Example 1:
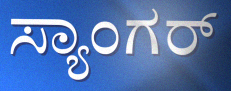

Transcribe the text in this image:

ಸ್ಯಾಂಗರ್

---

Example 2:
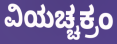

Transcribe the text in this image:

ವಿಯಚ್ಚಕ್ರಂ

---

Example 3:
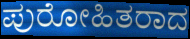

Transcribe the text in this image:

ಪುರೋಹಿತರಾದ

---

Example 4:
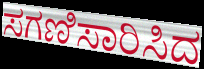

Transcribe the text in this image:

ಸಗಣಿಸಾರಿಸಿದ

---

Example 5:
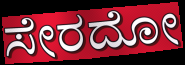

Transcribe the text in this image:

ಸೇರದೋ